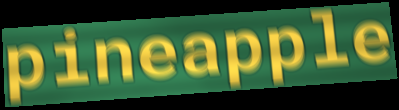
pineapple